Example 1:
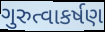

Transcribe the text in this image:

ગુરુત્વાકર્ષણ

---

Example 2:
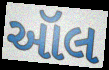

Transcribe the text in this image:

ઑલ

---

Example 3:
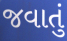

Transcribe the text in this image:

જવાતું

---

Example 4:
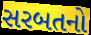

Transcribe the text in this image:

સરબતનો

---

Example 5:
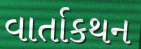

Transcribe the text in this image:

વાર્તાકથન